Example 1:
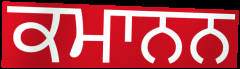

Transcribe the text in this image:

ਕਮਾਨਨ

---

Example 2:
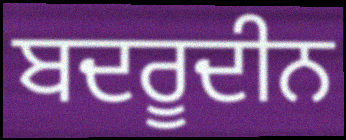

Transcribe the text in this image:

ਬਦਰੂਦੀਨ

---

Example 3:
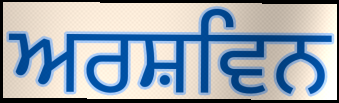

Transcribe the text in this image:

ਅਰਸ਼ਵਿਨ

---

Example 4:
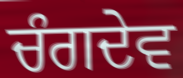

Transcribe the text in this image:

ਚੰਗਦੇਵ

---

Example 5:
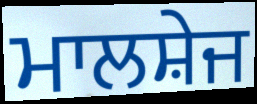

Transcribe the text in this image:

ਮਾਲਸ਼ੇਜ